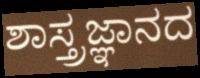
ಶಾಸ್ತ್ರಜ್ಞಾನದ